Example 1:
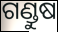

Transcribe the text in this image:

ଗଣ୍ଡୁଷ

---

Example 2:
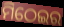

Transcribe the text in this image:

ମିଠେଇର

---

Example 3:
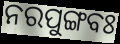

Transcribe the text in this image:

ନରପୁଙ୍ଗବଃ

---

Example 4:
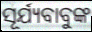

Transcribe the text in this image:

ସୂର୍ଯ୍ୟବାବୁଙ୍କ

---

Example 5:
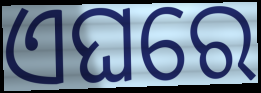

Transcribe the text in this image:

ଏଘରେ